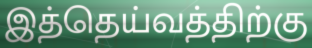
இத்தெய்வத்திற்கு